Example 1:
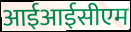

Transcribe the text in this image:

आईआईसीएम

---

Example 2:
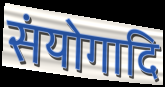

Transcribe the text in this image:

संयोगादि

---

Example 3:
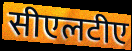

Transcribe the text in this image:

सीएलटीए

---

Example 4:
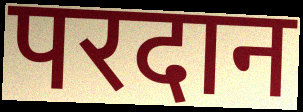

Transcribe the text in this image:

परदान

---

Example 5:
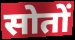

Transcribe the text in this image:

सोतों